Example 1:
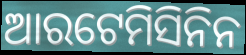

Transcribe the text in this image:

ଆରଟେମିସିନିନ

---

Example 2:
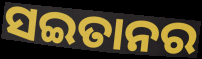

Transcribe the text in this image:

ସଇତାନର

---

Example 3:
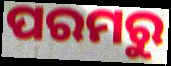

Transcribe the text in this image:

ପରମରୁ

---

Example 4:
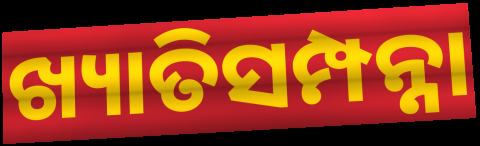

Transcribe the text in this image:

ଖ୍ୟାତିସମ୍ପନ୍ନା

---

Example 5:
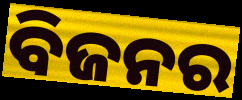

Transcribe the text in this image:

ବିଜନର